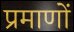
प्रमाणों